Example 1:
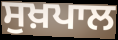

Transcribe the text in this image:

ਸੁਖ਼ਪਾਲ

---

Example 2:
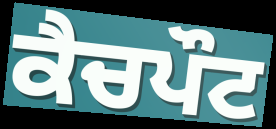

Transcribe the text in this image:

ਕੈਚਪੌਟ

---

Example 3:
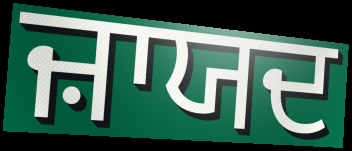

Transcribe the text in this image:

ਜ਼ਾਯਦ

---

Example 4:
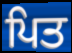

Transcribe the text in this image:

ਪਿਤ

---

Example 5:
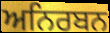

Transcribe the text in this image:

ਅਨਿਰਬਨ